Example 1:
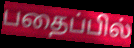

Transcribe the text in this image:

பதைப்பில்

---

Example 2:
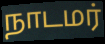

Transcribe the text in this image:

நாடமர்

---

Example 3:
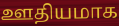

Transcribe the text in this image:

ஊதியமாக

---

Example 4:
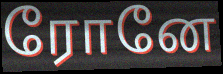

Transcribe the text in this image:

ரோனே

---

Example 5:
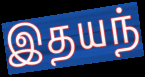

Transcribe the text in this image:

இதயந்